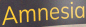
Amnesia